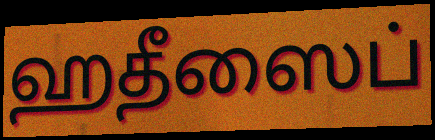
ஹதீஸைப்